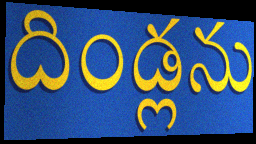
దిండ్లను